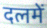
दलमें